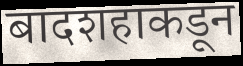
बादशहाकडून